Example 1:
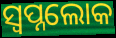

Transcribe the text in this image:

ସ୍ୱପ୍ନଲୋକ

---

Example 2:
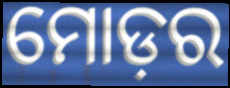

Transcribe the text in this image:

ମୋଡ଼ର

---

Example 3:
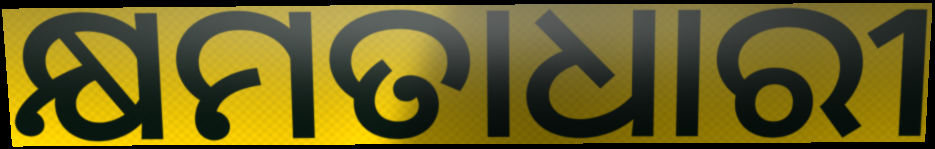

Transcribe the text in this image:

କ୍ଷମତାଧାରୀ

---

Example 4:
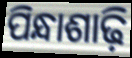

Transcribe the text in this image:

ପିନ୍ଧାଶାଢ଼ି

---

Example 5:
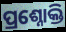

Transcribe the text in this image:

ପ୍ରଶ୍ନୋକ୍ତି